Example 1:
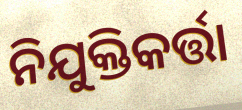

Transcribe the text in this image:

ନିଯୁକ୍ତିକର୍ତ୍ତା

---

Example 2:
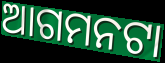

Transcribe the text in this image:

ଆଗମନଟା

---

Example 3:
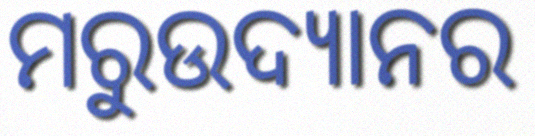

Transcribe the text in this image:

ମରୁଉଦ୍ୟାନର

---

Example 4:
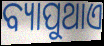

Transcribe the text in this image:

ବ୍ୟାପୁଥାଏ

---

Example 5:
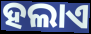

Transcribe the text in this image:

ହଲାଏ